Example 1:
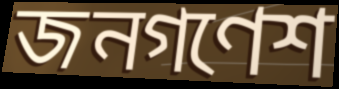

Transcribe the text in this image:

জনগণেশ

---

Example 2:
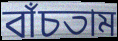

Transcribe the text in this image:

বাঁচতাম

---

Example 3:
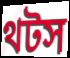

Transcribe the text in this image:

থটস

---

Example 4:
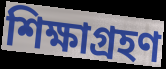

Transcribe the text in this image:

শিক্ষাগ্রহণ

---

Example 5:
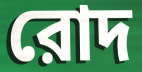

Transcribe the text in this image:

রোদ